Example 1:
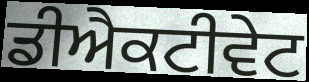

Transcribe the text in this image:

ਡੀਐਕਟੀਵੇਟ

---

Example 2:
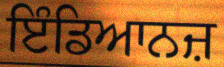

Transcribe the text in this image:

ਇੰਡਿਆਨਜ਼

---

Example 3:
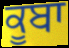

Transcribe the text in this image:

ਕੂਬਾ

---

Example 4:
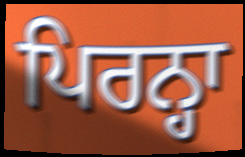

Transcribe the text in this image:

ਪਿਰਨ੍ਹਾ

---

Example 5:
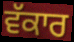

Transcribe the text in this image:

ਵੱਕਾਰ